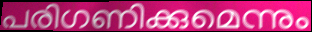
പരിഗണിക്കുമെന്നും